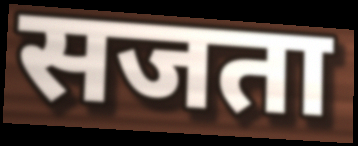
सजता